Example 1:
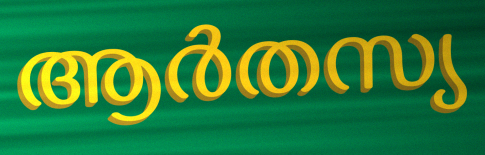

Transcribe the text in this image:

ആർതസ്യ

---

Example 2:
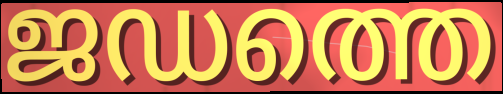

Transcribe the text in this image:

ജഡത്തെ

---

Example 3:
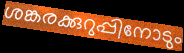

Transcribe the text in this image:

ശങ്കരക്കുറുപ്പിനോടും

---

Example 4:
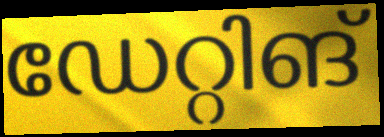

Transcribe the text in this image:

ഡേറ്റിങ്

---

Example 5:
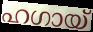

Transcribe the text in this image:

ഹഗായ്